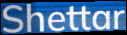
Shettar